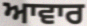
ਆਵਾਰ